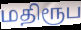
மதிரூப